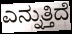
ಎನ್ನುತ್ತಿದೆ